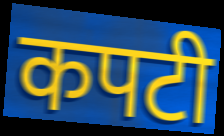
कपटी